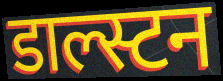
डाल्स्टन